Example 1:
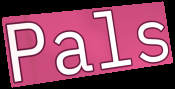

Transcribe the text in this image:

Pals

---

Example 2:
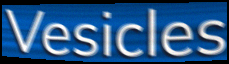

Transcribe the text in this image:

Vesicles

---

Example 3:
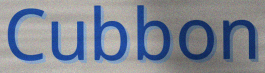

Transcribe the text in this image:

Cubbon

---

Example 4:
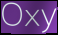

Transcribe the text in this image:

Oxy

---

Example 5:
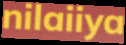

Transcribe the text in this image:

nilaiiya